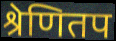
श्रेणितप